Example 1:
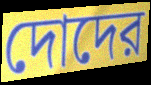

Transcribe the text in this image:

দোদের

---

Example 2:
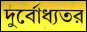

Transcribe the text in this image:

দুর্বোধ্যতর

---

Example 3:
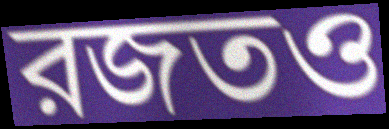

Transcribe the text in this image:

রজতও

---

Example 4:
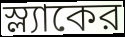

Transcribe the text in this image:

স্ল্যাকের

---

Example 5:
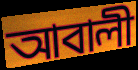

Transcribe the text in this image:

আবালী